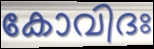
കോവിദഃ